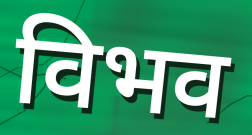
विभव